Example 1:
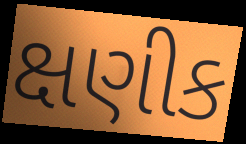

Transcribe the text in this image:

ક્ષણીક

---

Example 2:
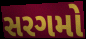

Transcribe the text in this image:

સરગમો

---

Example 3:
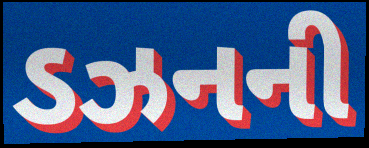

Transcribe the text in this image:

ડઝનની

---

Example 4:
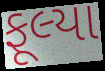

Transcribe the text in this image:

ફૂલ્યા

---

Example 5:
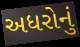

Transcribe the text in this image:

અધરોનું